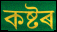
কষ্টৰ